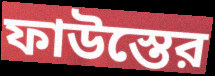
ফাউস্তের